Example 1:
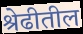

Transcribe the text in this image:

श्रेढीतील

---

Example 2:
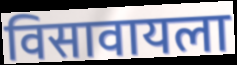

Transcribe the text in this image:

विसावायला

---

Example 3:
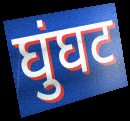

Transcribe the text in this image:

घुंघट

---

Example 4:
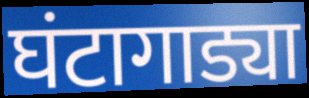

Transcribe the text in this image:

घंटागाड्या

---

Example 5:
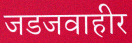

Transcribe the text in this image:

जडजवाहीर